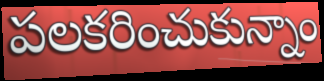
పలకరించుకున్నాం